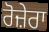
ਰੋਜ਼ੇਰਾ